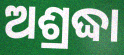
ଅଶ୍ରଦ୍ଧା